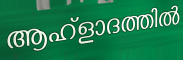
ആഹ്ളാദത്തിൽ